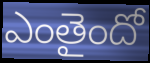
ఎంతైందో